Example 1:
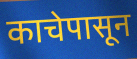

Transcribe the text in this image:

काचेपासून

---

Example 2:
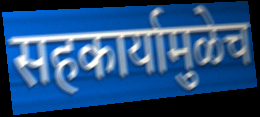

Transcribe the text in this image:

सहकार्यामुळेच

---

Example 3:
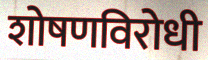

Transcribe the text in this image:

शोषणविरोधी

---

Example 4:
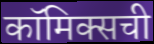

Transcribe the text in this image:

कॉमिक्सची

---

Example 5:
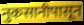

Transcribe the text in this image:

नुकसानीपासून